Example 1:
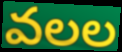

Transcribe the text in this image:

వలల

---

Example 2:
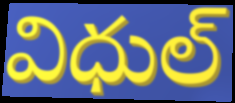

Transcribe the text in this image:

విధుల్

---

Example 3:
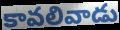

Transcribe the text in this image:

కావలివాడు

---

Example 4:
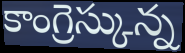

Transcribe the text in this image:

కాంగ్రెస్కున్న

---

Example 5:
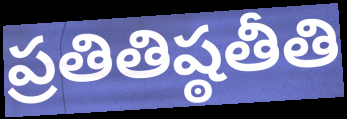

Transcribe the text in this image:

ప్రతితిష్ఠతీతి